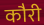
कौरी